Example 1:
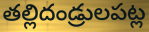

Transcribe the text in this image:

తల్లిదండ్రులపట్ల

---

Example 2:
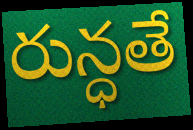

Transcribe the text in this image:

రున్ధతే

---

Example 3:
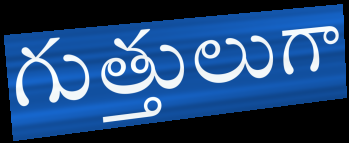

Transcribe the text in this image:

గుత్తులుగా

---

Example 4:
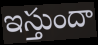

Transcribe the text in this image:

ఇస్తుందా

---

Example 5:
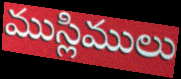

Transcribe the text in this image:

ముస్లిములు